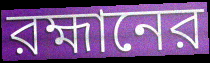
রহ্মানের